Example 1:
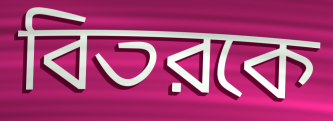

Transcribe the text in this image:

বিতরকে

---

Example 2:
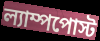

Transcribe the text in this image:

ল্যাম্পপোস্ট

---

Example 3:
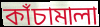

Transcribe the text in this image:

কাঁচামালা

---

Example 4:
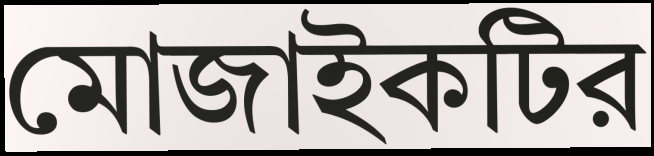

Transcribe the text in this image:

মোজাইকটির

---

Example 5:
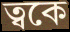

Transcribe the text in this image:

ত্বকে